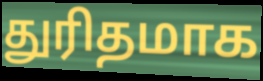
துரிதமாக